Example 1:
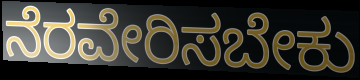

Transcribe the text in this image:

ನೆರವೇರಿಸಬೇಕು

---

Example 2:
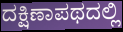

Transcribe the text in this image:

ದಕ್ಷಿಣಾಪಥದಲ್ಲಿ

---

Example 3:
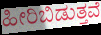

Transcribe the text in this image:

ಹೀರಿಬಿಡುತ್ತವೆ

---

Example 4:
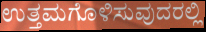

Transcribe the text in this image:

ಉತ್ತಮಗೊಳಿಸುವುದರಲ್ಲಿ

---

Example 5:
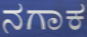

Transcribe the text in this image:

ನಗಾಕ